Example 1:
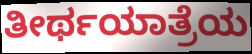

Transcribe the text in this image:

ತೀರ್ಥಯಾತ್ರೆಯ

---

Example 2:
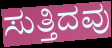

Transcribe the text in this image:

ಸುತ್ತಿದವು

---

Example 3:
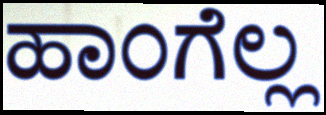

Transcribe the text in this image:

ಹಾಂಗೆಲ್ಲ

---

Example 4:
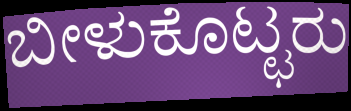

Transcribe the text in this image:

ಬೀಳುಕೊಟ್ಟರು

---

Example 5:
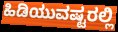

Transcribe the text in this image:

ಹಿಡಿಯುವಷ್ಟರಲ್ಲಿ